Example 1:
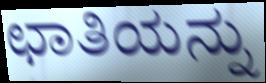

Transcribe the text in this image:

ಛಾತಿಯನ್ನು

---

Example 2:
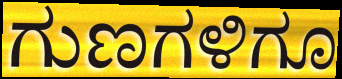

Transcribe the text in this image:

ಗುಣಗಳಿಗೂ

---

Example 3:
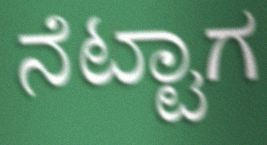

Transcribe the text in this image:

ನೆಟ್ಟಾಗ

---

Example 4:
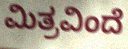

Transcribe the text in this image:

ಮಿತ್ರವಿಂದೆ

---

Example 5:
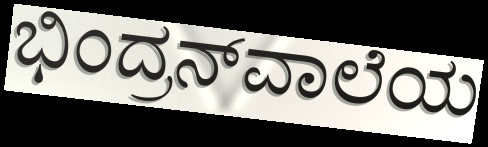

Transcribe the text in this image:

ಭಿಂದ್ರನ್‌ವಾಲೆಯ